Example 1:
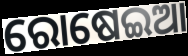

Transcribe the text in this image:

ରୋଷେଇଆ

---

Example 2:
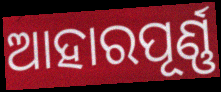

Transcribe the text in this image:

ଆହାରପୂର୍ଣ୍ଣ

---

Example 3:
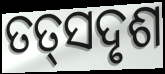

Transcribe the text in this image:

ତତ୍‌ସଦୃଶ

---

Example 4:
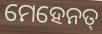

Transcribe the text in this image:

ମେହେନତ୍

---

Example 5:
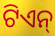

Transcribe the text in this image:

ଟିଏନ୍